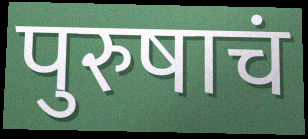
पुरुषाचं